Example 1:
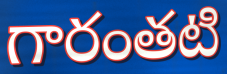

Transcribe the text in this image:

గారంతటి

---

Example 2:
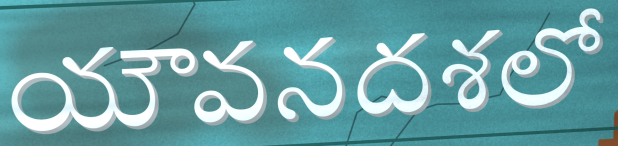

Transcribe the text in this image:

యౌవనదశలో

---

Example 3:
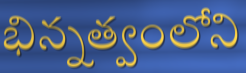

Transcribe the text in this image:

భిన్నత్వంలోని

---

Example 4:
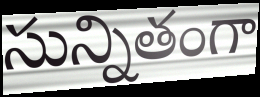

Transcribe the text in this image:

సున్నితంగా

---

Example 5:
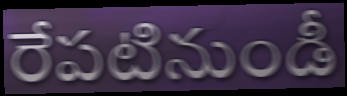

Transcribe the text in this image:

రేపటినుండీ